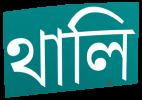
থালি